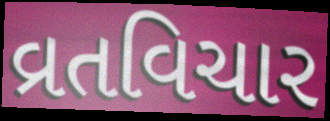
વ્રતવિચાર